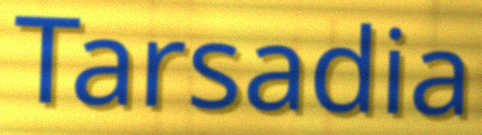
Tarsadia